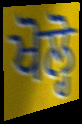
ਖੋਲ੍ਹੋ